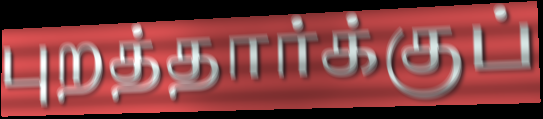
புறத்தார்க்குப்